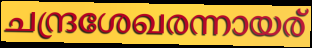
ചന്ദ്രശേഖരന്നായര്